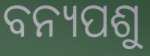
ବନ୍ୟପଶୁ